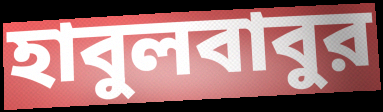
হাবুলবাবুর